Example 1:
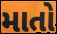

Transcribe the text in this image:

માતો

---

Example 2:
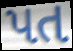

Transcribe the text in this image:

પત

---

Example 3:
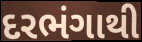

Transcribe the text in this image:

દરભંગાથી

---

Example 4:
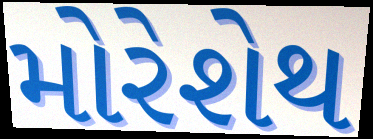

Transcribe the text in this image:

મોરેશેથ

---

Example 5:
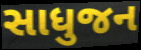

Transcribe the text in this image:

સાધુજન